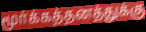
மூர்க்கத்தனத்துக்கு